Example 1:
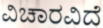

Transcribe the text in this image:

ವಿಚಾರವಿದೆ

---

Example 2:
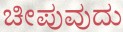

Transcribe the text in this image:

ಚೀಪುವುದು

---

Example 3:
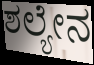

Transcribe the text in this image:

ಶಲ್ಯೇನ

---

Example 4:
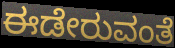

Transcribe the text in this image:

ಈಡೇರುವಂತೆ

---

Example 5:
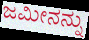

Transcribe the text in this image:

ಜಮೀನನ್ನು